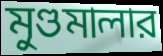
মুণ্ডমালার